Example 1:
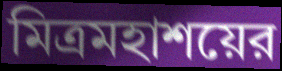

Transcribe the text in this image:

মিত্রমহাশয়ের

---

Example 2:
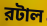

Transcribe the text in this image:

রটাল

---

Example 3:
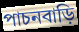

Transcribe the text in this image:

পাচনবাড়ি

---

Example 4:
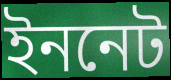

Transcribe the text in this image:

ইননেট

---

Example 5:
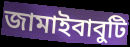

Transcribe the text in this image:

জামাইবাবুটি